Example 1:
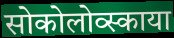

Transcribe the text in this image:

सोकोलोव्स्काया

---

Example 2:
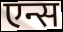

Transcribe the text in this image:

एन्स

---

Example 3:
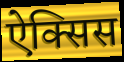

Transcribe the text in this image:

ऐक्सिस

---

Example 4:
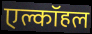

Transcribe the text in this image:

एल्कॉहल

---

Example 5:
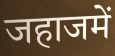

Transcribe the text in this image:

जहाजमें